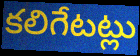
కలిగేటట్లు